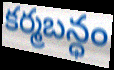
కర్మబన్ధం